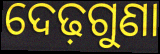
ଦେଢ଼ଗୁଣା